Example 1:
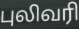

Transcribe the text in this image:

புலிவரி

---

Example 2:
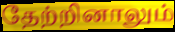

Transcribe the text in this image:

தேற்றினாலும்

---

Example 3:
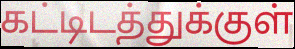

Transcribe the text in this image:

கட்டிடத்துக்குள்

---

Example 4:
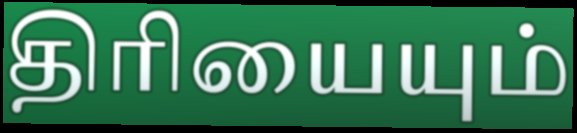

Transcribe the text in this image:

திரியையும்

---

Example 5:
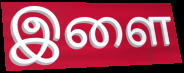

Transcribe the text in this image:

இளை